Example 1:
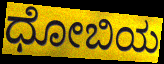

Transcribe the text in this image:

ಧೋಬಿಯ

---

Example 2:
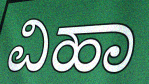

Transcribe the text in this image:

ವಿಹಾ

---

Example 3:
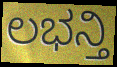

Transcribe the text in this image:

ಲಭನ್ತಿ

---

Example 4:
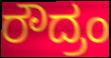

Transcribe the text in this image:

ರೌದ್ರಂ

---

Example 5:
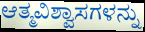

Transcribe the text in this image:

ಆತ್ಮವಿಶ್ವಾಸಗಳನ್ನು